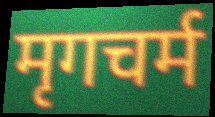
मृगचर्म